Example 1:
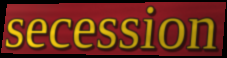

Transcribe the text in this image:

secession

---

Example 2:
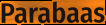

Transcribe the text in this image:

Parabaas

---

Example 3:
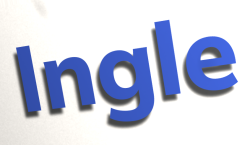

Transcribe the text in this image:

Ingle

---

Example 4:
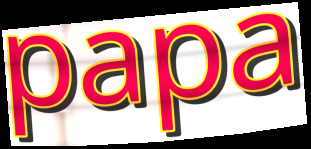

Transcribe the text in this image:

papa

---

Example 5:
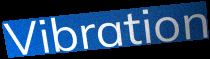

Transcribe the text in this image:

Vibration